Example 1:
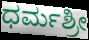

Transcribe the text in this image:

ಧರ್ಮಶ್ರೀ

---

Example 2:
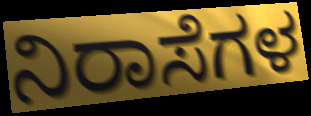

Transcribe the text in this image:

ನಿರಾಸೆಗಳ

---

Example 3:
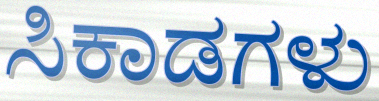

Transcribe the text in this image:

ಸಿಕಾಡಗಳು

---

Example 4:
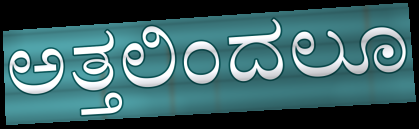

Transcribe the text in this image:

ಅತ್ತಲಿಂದಲೂ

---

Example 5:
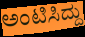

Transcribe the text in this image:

ಅಂಟಿಸಿದ್ದು